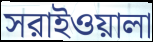
সরাইওয়ালা